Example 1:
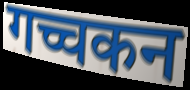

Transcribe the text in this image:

गच्चकन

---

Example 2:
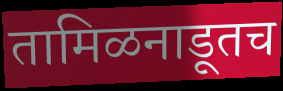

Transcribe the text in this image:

तामिळनाडूतच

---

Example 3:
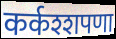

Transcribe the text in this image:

कर्कश्शपणा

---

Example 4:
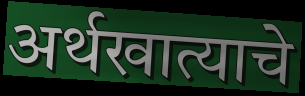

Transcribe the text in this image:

अर्थखात्याचे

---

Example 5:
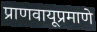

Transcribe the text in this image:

प्राणवायूप्रमाणे